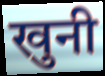
खुनी